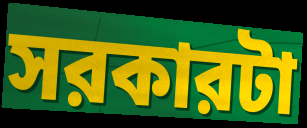
সরকারটা